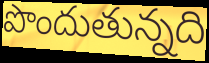
పొందుతున్నది